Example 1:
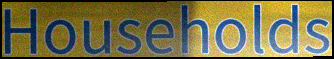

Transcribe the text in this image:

Households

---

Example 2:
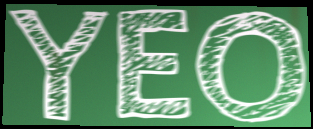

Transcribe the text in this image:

YEO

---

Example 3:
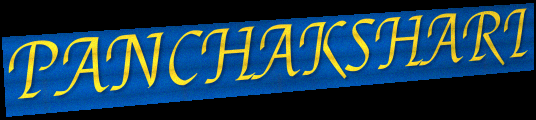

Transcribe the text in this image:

PANCHAKSHARI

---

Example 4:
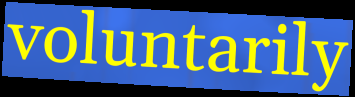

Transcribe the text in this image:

voluntarily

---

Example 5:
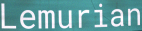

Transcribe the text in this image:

Lemurian